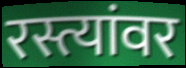
रस्त्यांवर